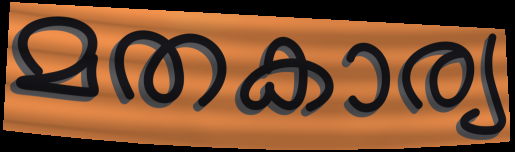
മതകാര്യ